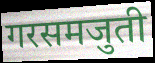
गरसमजुती